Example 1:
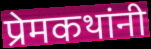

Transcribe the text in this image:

प्रेमकथांनी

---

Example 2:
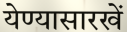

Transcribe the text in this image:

येण्यासारखें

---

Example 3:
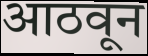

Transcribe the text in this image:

आठवून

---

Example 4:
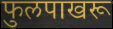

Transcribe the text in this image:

फुलपाखरू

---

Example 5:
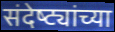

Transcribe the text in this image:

संदेष्ट्यांच्या